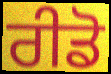
ਰੀਡੋ